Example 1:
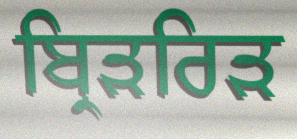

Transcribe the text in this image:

ਬ੍ਰਿੜਰਿੜ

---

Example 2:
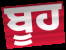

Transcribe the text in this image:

ਬੂਹ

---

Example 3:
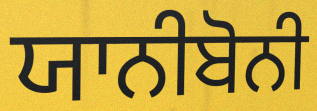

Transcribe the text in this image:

ਯਾਨੀਬੋਨੀ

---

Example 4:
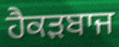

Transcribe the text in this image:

ਹੈਕੜਬਾਜ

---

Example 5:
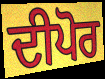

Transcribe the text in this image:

ਦੀਪੋਰ